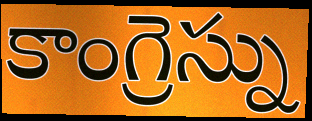
కాంగ్రెస్ను